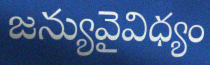
జన్యువైవిధ్యం